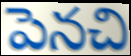
పెనచి